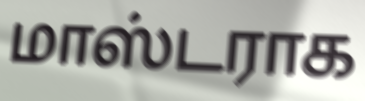
மாஸ்டராக